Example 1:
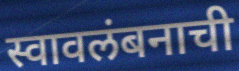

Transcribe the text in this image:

स्वावलंबनाची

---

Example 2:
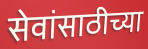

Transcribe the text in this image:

सेवांसाठीच्या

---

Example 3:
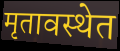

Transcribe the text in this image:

मृतावस्थेत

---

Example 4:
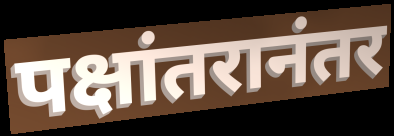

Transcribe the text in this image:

पक्षांतरानंतर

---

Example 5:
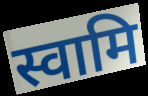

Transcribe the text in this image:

स्वामि